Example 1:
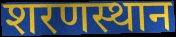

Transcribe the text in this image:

शरणस्थान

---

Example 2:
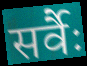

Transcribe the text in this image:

सर्वैः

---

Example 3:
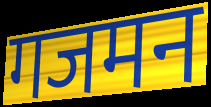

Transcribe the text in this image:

गजमन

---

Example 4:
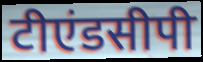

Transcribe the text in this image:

टीएंडसीपी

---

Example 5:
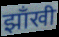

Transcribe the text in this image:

झाँखी